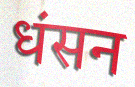
धंसन